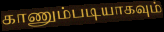
காணும்படியாகவும்